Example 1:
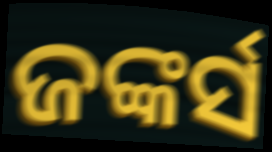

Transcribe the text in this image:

ଜଙ୍କର୍ସ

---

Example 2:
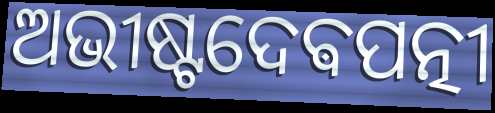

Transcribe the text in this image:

ଅଭୀଷ୍ଟଦେଵପତ୍ନୀ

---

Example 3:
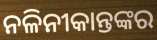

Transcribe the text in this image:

ନଳିନୀକାନ୍ତଙ୍କର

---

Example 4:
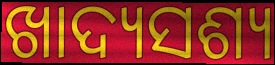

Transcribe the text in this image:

ଖାଦ୍ୟସଶ୍ୟ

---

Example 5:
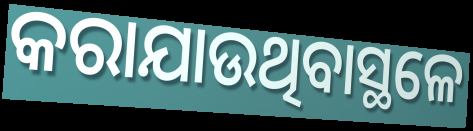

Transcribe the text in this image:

କରାଯାଉଥିବାସ୍ଥଳେ